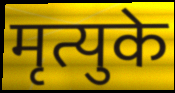
मृत्युके